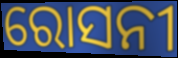
ରୋସନୀ